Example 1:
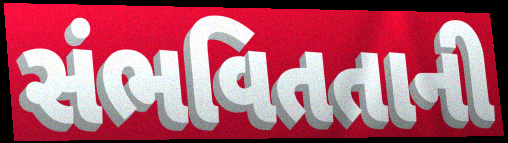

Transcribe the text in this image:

સંભવિતતાની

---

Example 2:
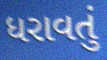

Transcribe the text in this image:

ધરાવતું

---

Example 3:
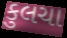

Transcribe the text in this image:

કુલચા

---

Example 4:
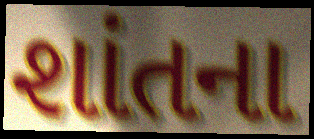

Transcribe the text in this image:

શાંતના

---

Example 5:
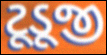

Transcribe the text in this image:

ટૂડૂજી